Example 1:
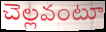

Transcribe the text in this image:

చెల్లవంటూ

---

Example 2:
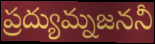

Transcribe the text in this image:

ప్రద్యుమ్నజననీ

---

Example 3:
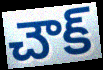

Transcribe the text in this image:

చౌక్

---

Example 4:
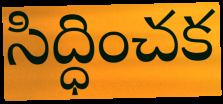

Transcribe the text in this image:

సిద్ధించక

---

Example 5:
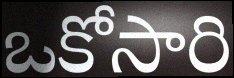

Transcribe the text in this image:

ఒకోసారి